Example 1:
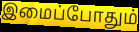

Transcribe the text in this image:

இமைப்போதும்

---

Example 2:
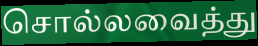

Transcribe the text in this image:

சொல்லவைத்து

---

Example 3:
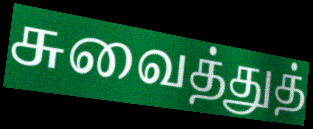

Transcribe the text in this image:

சுவைத்துத்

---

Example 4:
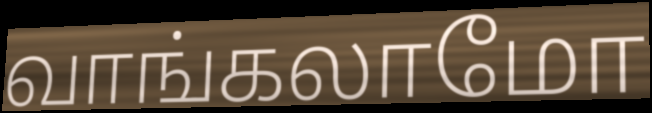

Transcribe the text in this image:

வாங்கலாமோ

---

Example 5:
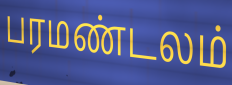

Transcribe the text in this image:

பரமண்டலம்